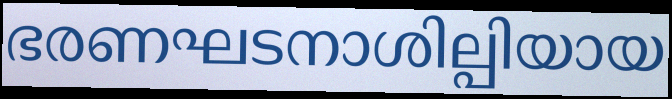
ഭരണഘടനാശില്പിയായ